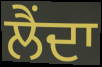
ਲੈਂਦਾ